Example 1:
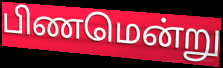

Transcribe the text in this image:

பிணமென்று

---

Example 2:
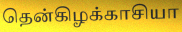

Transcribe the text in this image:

தென்கிழக்காசியா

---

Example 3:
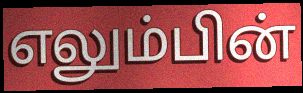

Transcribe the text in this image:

எலும்பின்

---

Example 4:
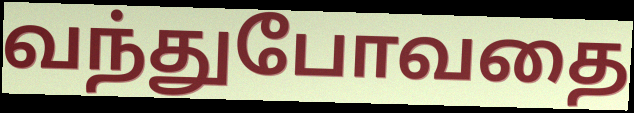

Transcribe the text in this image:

வந்துபோவதை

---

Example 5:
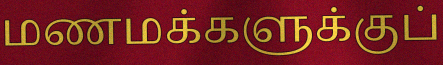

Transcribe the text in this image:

மணமக்களுக்குப்